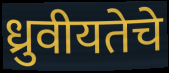
ध्रुवीयतेचे